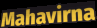
Mahavirna